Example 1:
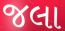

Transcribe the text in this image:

જલા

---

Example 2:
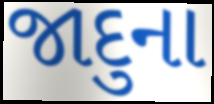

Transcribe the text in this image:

જાદુના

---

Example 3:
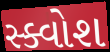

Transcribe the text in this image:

સ્ક્વોશ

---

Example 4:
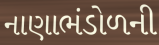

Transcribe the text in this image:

નાણાભંડોળની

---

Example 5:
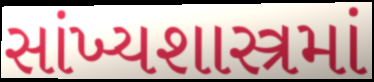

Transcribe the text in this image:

સાંખ્યશાસ્ત્રમાં